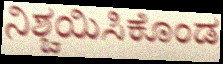
ನಿಶ್ಚಯಿಸಿಕೊಂಡ